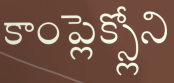
కాంప్లెక్స్లోని